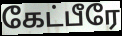
கேட்பீரே